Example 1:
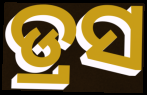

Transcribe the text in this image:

ଡ୍ରସ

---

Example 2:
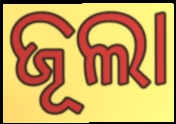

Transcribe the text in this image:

ଜୂଲା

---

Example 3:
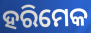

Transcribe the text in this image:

ହରିମେକ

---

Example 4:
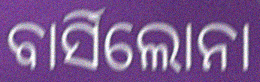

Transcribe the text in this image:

ବାର୍ସିଲୋନା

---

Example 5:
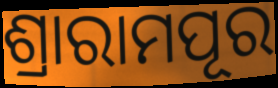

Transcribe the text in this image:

ଶ୍ରାରାମପୂର